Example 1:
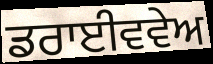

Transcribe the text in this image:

ਡਰਾਈਵਵੇਅ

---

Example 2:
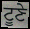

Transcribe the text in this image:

ਟੂਣੇ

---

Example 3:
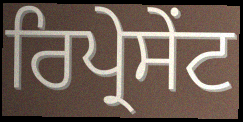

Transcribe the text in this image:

ਰਿਪ੍ਰੇਸੇੰਟ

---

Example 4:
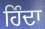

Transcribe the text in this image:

ਹਿੰਦਾ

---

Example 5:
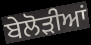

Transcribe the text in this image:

ਬੇਲੋੜੀਆਂ